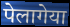
पेलागेया